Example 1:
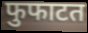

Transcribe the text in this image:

फुफाटत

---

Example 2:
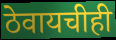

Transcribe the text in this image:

ठेवायचीही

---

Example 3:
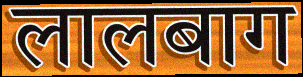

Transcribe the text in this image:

लालबाग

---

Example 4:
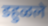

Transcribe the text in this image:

डहुळले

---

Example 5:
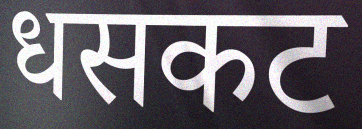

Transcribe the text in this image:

धसकट